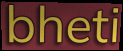
bheti